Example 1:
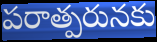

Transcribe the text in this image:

పరాత్పరునకు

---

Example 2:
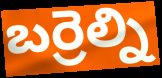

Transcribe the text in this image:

బర్రెల్ని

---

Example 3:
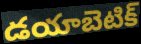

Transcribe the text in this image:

డయాబెటిక్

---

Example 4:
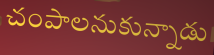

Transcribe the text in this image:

చంపాలనుకున్నాడు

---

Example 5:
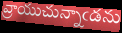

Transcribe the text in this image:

వ్రాయుచున్నాఁడను